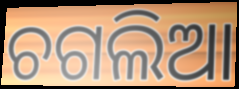
ଚଗଲିଆ